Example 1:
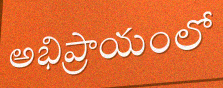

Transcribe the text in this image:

అభిప్రాయంలో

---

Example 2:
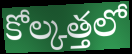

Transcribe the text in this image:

కోల్కత్తలో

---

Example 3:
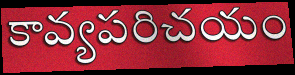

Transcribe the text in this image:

కావ్యపరిచయం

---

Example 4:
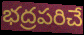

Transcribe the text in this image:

భద్రపరిచే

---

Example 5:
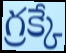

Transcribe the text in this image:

గ్రక్కే